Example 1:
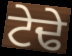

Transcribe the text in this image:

ਟੇਢੇ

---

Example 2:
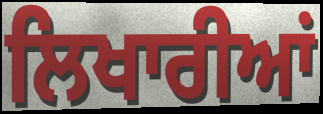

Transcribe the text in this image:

ਲਿਖਾਰੀਆਂ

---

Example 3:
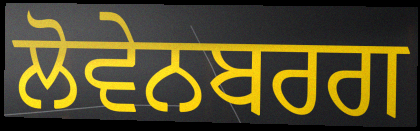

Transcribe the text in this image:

ਲੋਵੇਨਬਰਗ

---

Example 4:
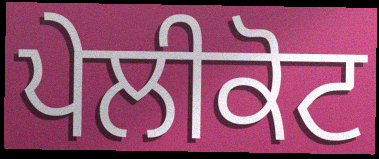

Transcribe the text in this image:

ਪੇਲੀਕੋਟ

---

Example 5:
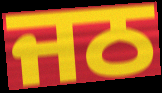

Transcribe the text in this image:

ਜਠ